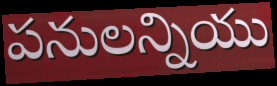
పనులన్నియు